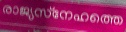
രാജ്യസ്‌നേഹത്തെ